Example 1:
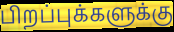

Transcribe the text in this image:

பிறப்புக்களுக்கு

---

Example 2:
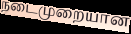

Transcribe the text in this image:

நடைமுறையான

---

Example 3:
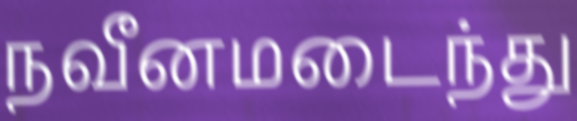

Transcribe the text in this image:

நவீனமடைந்து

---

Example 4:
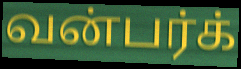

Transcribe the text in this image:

வன்பர்க்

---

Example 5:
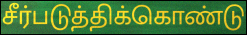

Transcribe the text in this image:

சீர்படுத்திக்கொண்டு